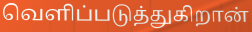
வெளிப்படுத்துகிறான்